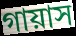
গায়াস